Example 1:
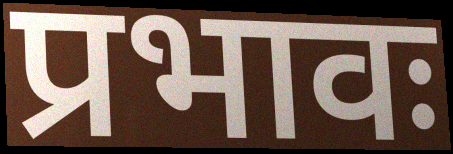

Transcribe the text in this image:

प्रभावः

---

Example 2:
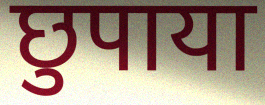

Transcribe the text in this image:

छुपाया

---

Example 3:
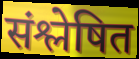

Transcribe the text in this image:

संश्लेषित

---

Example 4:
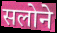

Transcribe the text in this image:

सलोने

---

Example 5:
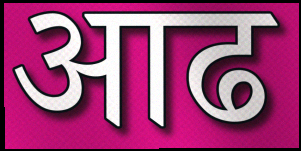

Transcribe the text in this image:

आढ